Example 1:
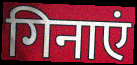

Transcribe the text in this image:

गिनाएं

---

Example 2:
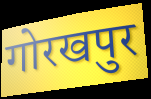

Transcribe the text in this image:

गोरखपुर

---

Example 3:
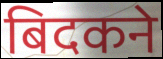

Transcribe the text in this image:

बिदकने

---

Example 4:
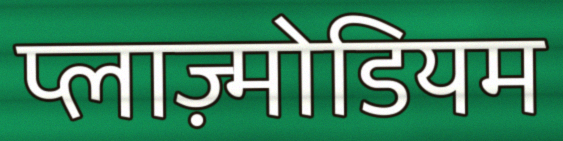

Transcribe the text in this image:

प्लाज़्मोडियम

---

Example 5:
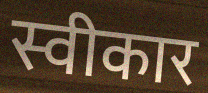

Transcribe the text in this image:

स्वीकार